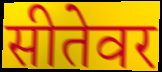
सीतेवर